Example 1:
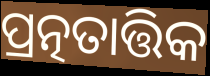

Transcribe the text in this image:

ପ୍ରତ୍ନତାତ୍ତିକ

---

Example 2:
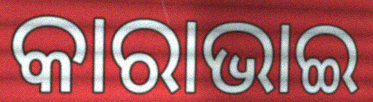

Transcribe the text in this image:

କାରାଭାଇ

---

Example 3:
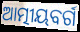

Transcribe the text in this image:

ଆତ୍ମୀୟବର୍ଗ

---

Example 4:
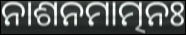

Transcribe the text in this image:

ନାଶନମାତ୍ମନଃ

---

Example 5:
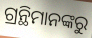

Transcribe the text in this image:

ଗ୍ରନ୍ଥିମାନଙ୍କରୁ